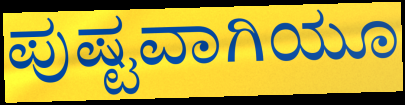
ಪುಷ್ಟವಾಗಿಯೂ